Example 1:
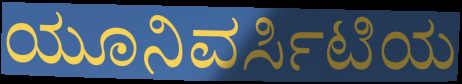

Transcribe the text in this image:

ಯೂನಿವರ್ಸಿಟಿಯ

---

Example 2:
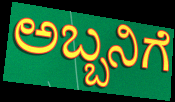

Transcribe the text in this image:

ಅಬ್ಬನಿಗೆ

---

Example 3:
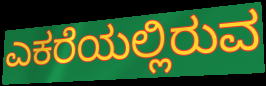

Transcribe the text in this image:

ಎಕರೆಯಲ್ಲಿರುವ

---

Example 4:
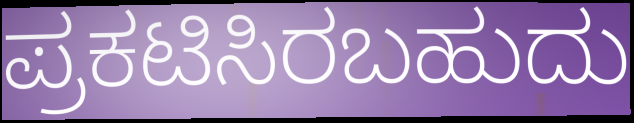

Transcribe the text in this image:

ಪ್ರಕಟಿಸಿರಬಹುದು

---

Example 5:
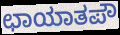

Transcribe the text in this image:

ಛಾಯಾತಪೌ